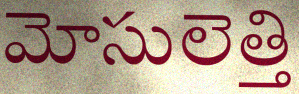
మోసులెత్తి